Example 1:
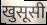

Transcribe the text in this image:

खुसूसी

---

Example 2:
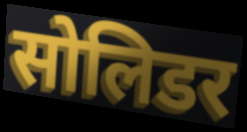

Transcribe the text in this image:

सोलिडर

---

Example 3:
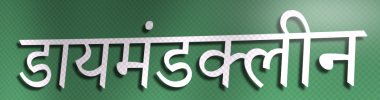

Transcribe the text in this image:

डायमंडक्लीन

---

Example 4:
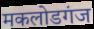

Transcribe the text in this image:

मकलोडगंज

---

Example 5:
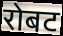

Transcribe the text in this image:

रोबट